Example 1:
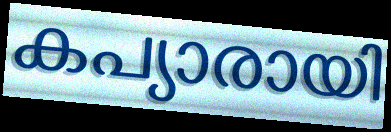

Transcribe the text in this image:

കപ്യാരായി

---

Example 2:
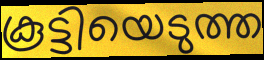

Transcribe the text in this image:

കൂട്ടിയെടുത്ത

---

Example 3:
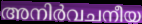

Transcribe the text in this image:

അനിർവചനീയ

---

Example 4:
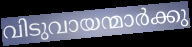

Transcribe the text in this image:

വിടുവായന്മാർക്കു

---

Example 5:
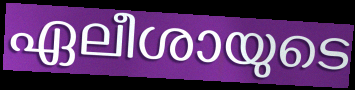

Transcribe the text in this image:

ഏലീശായുടെ